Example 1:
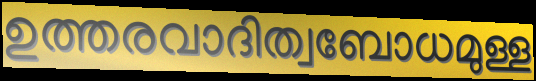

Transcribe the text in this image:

ഉത്തരവാദിത്വബോധമുള്ള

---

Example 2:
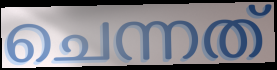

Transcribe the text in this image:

ചെന്നത്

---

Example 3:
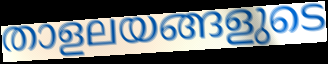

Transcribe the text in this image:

താളലയങ്ങളുടെ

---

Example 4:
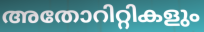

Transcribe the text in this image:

അതോറിറ്റികളും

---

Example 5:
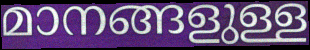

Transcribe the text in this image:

മാനങ്ങളുള്ള